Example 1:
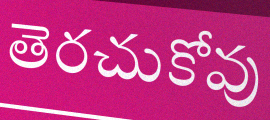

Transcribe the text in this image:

తెరచుకోవు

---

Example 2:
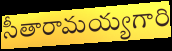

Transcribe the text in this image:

సీతారామయ్యగారి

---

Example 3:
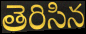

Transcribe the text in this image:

తెరిసిన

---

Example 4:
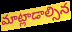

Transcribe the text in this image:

మాట్లాడాల్సిన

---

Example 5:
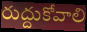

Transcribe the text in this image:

రుద్దుకోవాలి